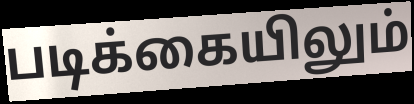
படிக்கையிலும்